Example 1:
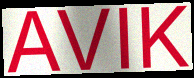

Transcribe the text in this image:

AVIK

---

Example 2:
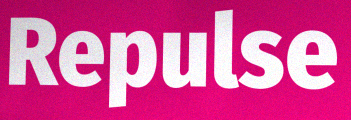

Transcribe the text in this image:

Repulse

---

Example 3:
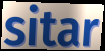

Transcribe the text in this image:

sitar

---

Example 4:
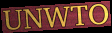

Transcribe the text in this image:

UNWTO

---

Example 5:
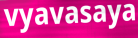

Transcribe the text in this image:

vyavasaya